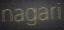
nagari